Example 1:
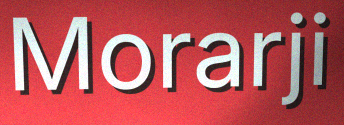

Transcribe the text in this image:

Morarji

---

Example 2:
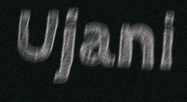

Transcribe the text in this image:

Ujani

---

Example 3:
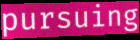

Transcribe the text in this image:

pursuing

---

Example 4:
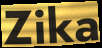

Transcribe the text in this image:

Zika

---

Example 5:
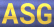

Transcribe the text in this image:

ASG